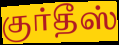
குர்தீஸ்